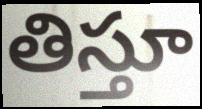
తిస్తూ